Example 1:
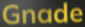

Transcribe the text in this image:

Gnade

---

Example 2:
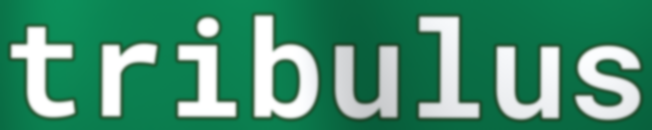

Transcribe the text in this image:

tribulus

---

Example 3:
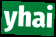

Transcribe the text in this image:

yhai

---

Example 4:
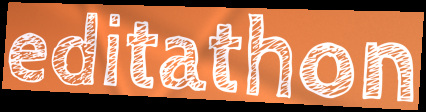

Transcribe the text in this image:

editathon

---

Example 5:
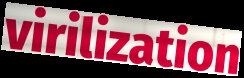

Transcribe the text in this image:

virilization